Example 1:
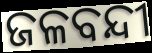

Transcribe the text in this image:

ଜଳବନ୍ଦୀ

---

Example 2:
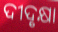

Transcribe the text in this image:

ଦୀଦୃକ୍ଷା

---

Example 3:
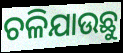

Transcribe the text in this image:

ଚଳିଯାଉଛୁ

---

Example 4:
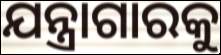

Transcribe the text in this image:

ଯନ୍ତ୍ରାଗାରକୁ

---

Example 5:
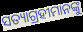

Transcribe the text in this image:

ସତ୍ୟାଗ୍ରହୀମାନଙ୍କୁ